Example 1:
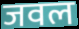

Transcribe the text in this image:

जवल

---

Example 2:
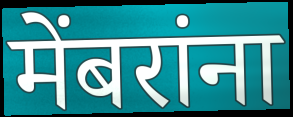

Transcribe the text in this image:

मेंबरांना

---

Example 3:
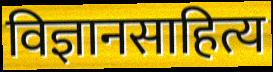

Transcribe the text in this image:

विज्ञानसाहित्य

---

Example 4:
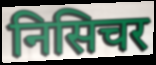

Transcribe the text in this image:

निसिचर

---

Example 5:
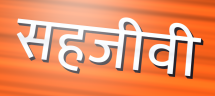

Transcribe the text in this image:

सहजीवी